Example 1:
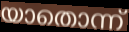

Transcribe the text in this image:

യാതൊന്ന്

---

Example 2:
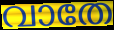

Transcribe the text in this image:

വാതേ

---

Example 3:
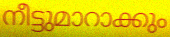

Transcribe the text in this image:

നീട്ടുമാറാക്കും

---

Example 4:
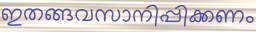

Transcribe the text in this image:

ഇതങ്ങവസാനിപ്പിക്കണം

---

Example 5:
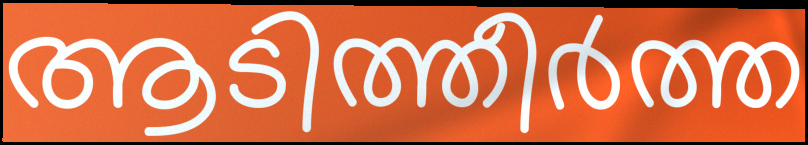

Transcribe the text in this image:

ആടിത്തീർത്ത